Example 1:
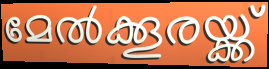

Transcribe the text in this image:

മേൽക്കൂരയ്ക്ക്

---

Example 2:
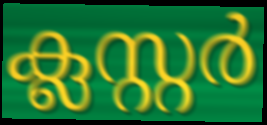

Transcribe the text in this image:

ക്ലസ്റ്റർ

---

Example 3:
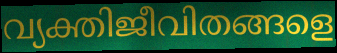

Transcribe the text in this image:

വ്യക്തിജീവിതങ്ങളെ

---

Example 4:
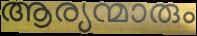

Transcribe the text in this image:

ആര്യന്മാരും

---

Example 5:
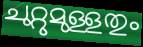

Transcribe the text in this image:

ചുറ്റുമുള്ളതും